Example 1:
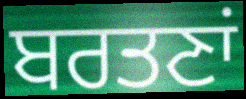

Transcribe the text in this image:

ਬਰਤਣਾਂ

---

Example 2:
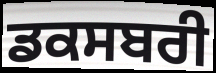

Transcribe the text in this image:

ਡਕਸਬਰੀ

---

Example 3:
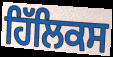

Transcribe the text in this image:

ਹਿੱਲਿਕਸ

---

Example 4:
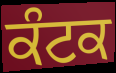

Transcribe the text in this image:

ਕੰਟਕ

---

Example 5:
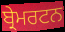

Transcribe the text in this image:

ਬ੍ਰੇਮਰਟਨ